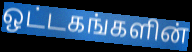
ஒட்டகங்களின்